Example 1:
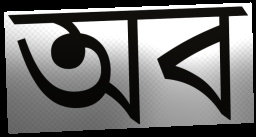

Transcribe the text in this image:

অব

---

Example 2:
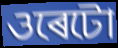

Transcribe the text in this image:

ওৰেটো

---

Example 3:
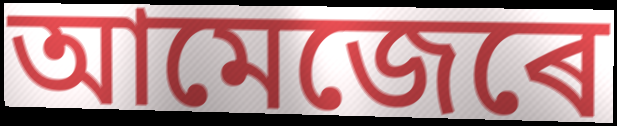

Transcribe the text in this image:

আমেজেৰে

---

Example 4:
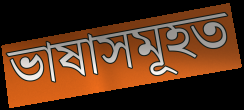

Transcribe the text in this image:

ভাষাসমূহত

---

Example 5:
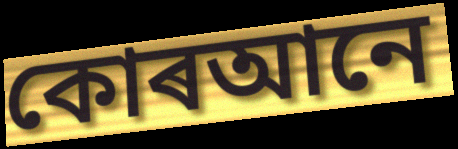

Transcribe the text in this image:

কোৰআনে